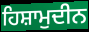
ਹਿਸ਼ਾਮੁਦੀਨ